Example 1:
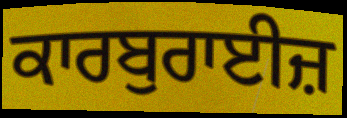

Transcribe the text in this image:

ਕਾਰਬੁਰਾਈਜ਼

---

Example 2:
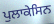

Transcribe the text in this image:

ਪੁਲਾਕੇਸਿਨ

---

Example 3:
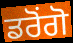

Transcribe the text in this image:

ਡਰੋਂਗੋ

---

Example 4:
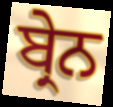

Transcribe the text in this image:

ਬ੍ਰੇਨ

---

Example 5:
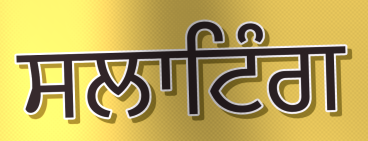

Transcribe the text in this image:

ਸਲਾਟਿੰਗ